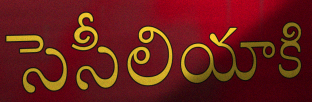
సెసీలియాకి